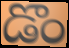
డొం